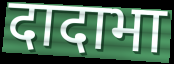
दादाभा